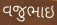
વજુભાઇ